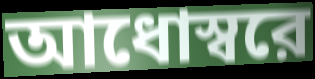
আধোস্বরে